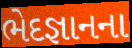
ભેદજ્ઞાનના